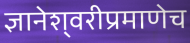
ज्ञानेश्वरीप्रमाणेच